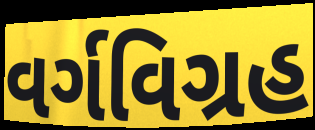
વર્ગવિગ્રહ